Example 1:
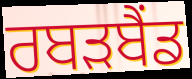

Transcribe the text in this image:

ਰਬੜਬੈਂਡ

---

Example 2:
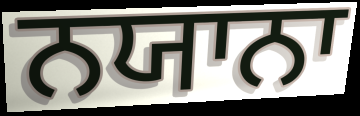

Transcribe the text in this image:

ਨਯਾਨਾ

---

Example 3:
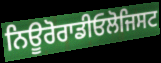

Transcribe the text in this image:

ਨਿਊਰੋਰਾਡੀਓਲੋਜਿਸਟ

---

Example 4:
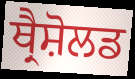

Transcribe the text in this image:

ਥ੍ਰੈਸ਼ੋਲਡ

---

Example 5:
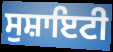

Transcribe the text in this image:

ਸੁਸ਼ਾਇਟੀ